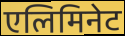
एलिमिनेट